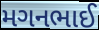
મગનભાઈ